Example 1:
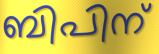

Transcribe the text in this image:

ബിപിന്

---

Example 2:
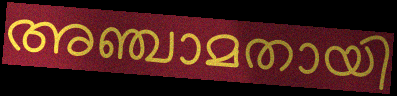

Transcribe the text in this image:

അഞ്ചാമതായി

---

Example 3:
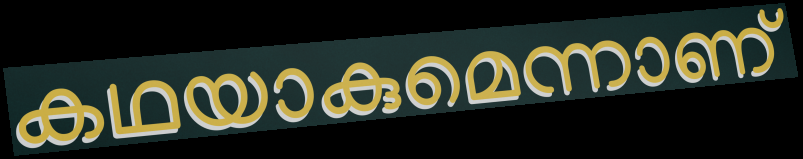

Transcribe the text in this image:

കഥയാകുമെന്നാണ്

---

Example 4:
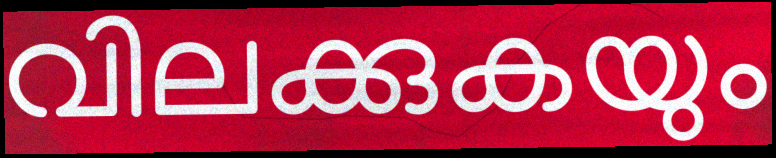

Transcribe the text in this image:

വിലക്കുകയും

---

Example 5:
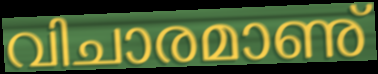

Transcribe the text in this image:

വിചാരമാണു്